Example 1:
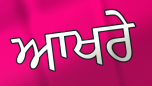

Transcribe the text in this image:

ਆਖਰੇ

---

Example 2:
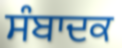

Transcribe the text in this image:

ਸੰਬਾਦਕ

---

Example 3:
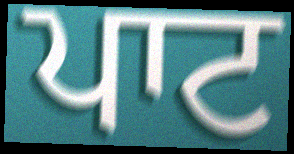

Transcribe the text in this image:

ਪਾਟ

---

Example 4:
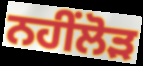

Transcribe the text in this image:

ਨਹੀਂਲੋੜ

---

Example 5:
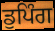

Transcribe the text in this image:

ਡੁਪਿੰਗ